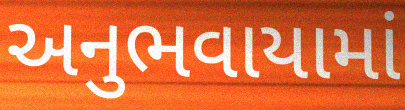
અનુભવાયામાં